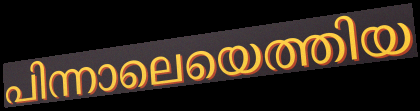
പിന്നാലെയെത്തിയ